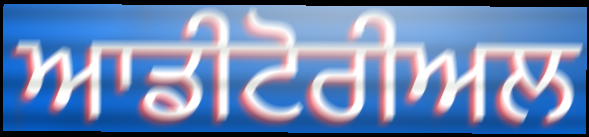
ਆਡੀਟੋਰੀਅਲ